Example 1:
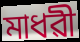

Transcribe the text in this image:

মাধৱী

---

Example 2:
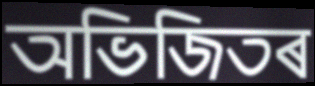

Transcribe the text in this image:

অভিজিতৰ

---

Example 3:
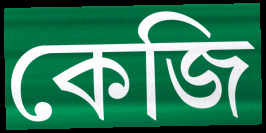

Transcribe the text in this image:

কেজি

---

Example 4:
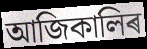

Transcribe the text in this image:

আজিকালিৰ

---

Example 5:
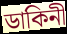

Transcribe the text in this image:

ডাকিনী